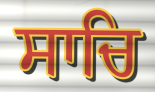
ਸਾਚਿ